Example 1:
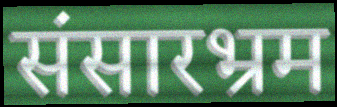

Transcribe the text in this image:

संसारभ्रम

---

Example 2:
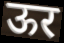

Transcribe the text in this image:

ऊर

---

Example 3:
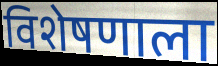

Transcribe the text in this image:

विशेषणाला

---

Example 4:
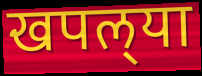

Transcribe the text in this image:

खपल्या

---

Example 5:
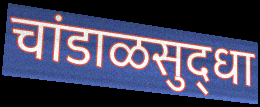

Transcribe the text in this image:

चांडाळसुद्धा